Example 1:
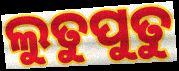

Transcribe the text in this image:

ଲୁତୁପୁତୁ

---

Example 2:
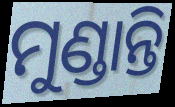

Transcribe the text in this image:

ମୁଣ୍ଡାନ୍ତି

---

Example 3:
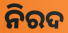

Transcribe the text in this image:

ନିରଦ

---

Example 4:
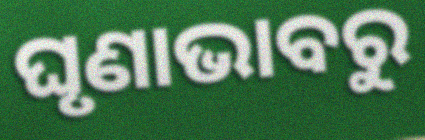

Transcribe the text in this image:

ଘୃଣାଭାବରୁ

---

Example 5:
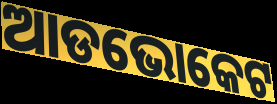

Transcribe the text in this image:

ଆଡଭୋକେଟ